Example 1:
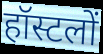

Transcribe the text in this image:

हॉस्टलों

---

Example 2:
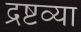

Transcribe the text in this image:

द्रष्टव्या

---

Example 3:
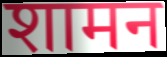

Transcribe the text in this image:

शामन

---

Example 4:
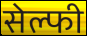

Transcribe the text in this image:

सेल्फी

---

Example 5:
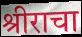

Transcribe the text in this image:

श्रीराचा